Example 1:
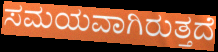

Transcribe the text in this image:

ಸಮಯವಾಗಿರುತ್ತದೆ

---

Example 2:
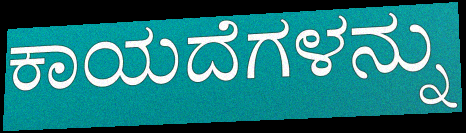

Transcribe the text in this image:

ಕಾಯದೆಗಳನ್ನು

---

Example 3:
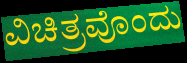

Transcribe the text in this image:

ವಿಚಿತ್ರವೊಂದು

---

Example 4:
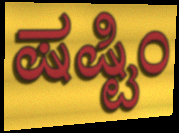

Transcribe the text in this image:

ಷಷ್ಟಿಂ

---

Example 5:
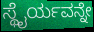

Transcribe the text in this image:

ಸ್ಥೈರ್ಯವನ್ನೇ